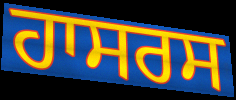
ਹਾਸਰਸ